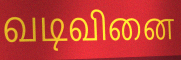
வடிவினை